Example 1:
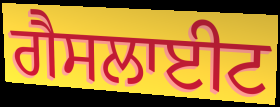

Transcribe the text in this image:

ਗੈਸਲਾਈਟ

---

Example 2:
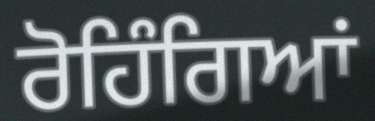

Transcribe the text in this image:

ਰੋਹਿੰਗਿਆਂ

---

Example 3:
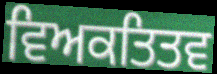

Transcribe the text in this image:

ਵਿਅਕਤਿਤਵ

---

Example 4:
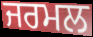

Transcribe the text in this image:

ਜਰਮਲ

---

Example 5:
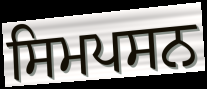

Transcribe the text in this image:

ਸਿਮਪਸਨ